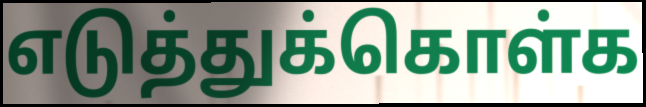
எடுத்துக்கொள்க